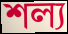
শল্য